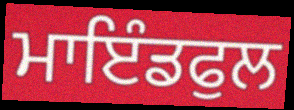
ਮਾਇੰਡਫੁਲ